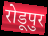
रोडूपुर